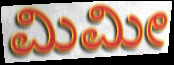
ಮಿಮೀ